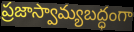
ప్రజాస్వామ్యబద్ధంగా